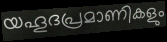
യഹൂദപ്രമാണികളും